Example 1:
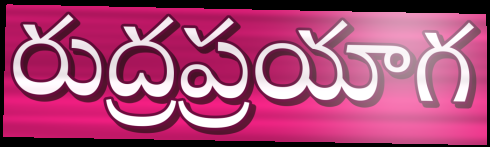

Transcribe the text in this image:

రుద్రప్రయాగ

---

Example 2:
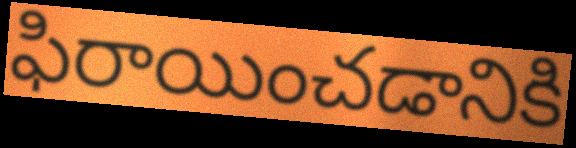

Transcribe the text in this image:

ఫిరాయించడానికి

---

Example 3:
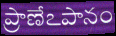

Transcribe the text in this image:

ప్రాణేఽపానం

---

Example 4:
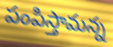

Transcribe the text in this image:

పంపిస్తామన్న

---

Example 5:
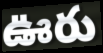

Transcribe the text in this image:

ఊరు